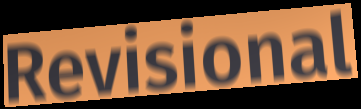
Revisional